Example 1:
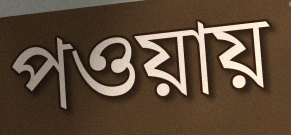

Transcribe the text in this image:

পওয়ায়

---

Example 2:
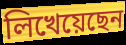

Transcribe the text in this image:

লিখেয়েছেন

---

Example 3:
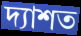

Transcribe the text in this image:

দ্যাশত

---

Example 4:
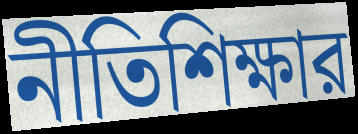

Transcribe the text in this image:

নীতিশিক্ষার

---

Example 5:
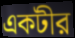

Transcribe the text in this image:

একটীর